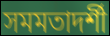
সমমতাদর্শী